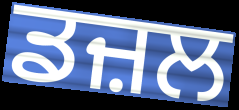
ਡਜ਼ਲ